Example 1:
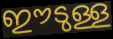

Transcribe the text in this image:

ഈടുള്ള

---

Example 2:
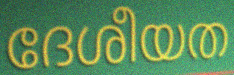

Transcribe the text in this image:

ദേശീയത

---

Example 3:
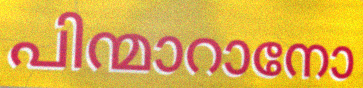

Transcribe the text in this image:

പിന്മാറാനോ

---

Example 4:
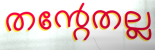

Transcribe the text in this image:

തന്റേതല്ല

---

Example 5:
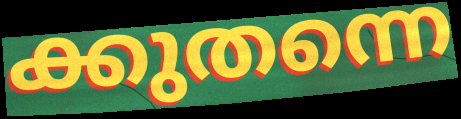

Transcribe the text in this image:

ക്കുതന്നെ